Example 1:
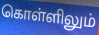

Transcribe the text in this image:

கொள்ளிலும்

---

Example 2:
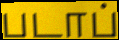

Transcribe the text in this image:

படாப்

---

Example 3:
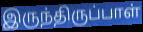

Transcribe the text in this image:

இருந்திருப்பாள்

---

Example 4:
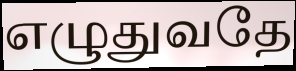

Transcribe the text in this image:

எழுதுவதே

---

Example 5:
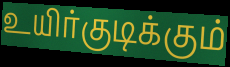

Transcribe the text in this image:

உயிர்குடிக்கும்